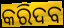
କରିଦବ